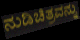
ನುಡಿಚಿತ್ರವನ್ನು